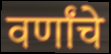
वर्णांचे